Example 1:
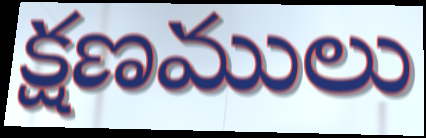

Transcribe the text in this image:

క్షణములు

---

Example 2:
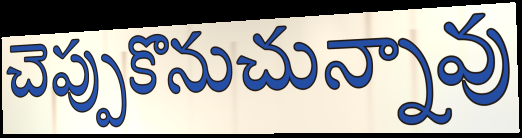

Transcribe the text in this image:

చెప్పుకొనుచున్నావు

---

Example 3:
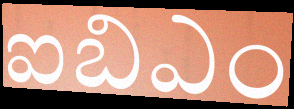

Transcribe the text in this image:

ఐబిఎం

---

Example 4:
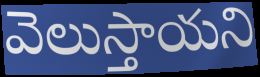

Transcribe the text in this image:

వెలుస్తాయని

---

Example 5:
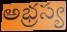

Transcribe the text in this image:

అభ్రస్య